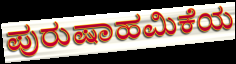
ಪುರುಷಾಹಮಿಕೆಯ